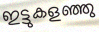
ഇട്ടുകളഞ്ഞു